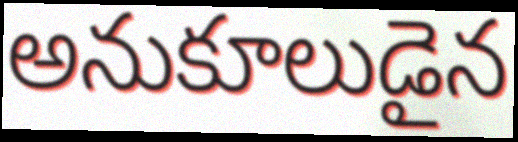
అనుకూలుడైన